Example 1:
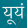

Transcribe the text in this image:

यूयं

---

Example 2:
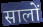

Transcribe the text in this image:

सालों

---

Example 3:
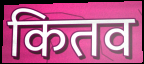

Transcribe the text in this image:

कितव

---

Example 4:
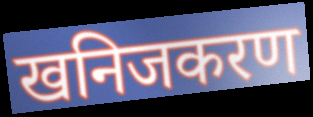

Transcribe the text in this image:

खनिजकरण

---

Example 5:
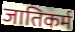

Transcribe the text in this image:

जातिकर्म